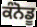
ਕੰਨੋਡੂ